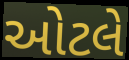
ઓટલે